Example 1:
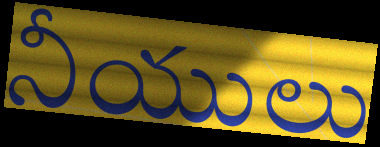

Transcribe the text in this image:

నీయులు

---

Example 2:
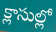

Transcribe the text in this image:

క్లాసుల్లో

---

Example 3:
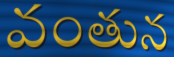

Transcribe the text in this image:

వంతున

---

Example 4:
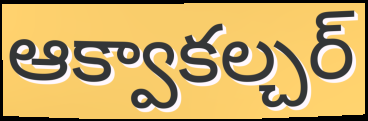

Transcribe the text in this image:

ఆక్వాకల్చర్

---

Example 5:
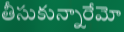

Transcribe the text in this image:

తీసుకున్నారేమో